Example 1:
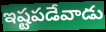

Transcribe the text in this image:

ఇష్టపడేవాడు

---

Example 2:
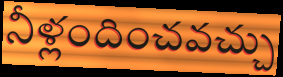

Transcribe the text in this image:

నీళ్లందించవచ్చు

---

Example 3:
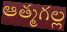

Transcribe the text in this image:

ఆత్మగల్ల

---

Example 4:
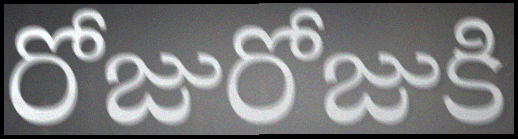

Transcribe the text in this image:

రోజురోజుకి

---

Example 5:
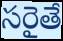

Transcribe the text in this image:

సరైతే